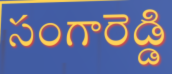
సంగారెడ్డి